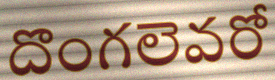
దొంగలెవరో